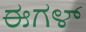
ಈಗಳ್